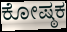
ಕೋಷ್ಠಕ